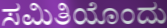
ಸಮಿತಿಯೊಂದು